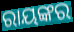
ରାୟଙ୍କର